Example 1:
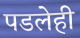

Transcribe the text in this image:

पडलेही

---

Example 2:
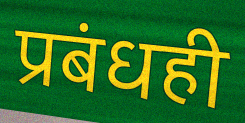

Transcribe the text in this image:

प्रबंधही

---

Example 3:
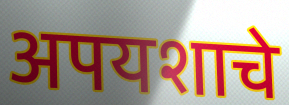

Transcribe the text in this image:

अपयशाचे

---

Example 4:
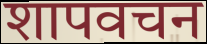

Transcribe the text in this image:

शापवचन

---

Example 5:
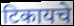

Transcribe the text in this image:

टिकायचे